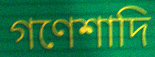
গণেশাদি